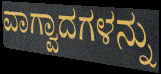
ವಾಗ್ವಾದಗಳನ್ನು